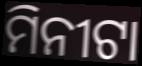
ମିନୀଟା